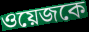
ওয়েজকে